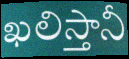
ఖలిస్తానీ